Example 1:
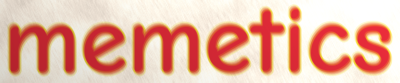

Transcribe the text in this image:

memetics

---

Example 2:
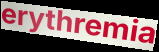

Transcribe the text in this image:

erythremia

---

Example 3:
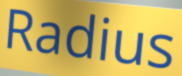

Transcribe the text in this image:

Radius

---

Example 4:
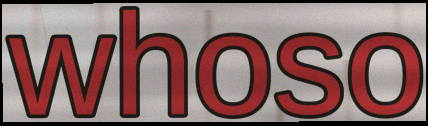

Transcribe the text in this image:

whoso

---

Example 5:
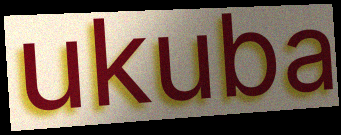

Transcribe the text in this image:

ukuba